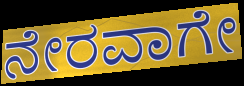
ನೇರವಾಗೇ